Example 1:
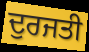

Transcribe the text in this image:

ਦੁਰਜਤੀ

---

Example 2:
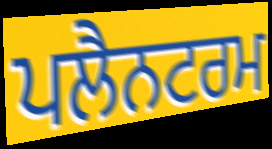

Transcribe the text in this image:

ਪਲੈਨਟਰਮ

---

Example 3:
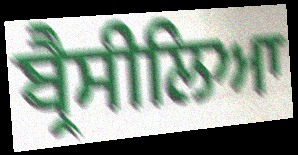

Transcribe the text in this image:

ਬ੍ਰੈਸੀਲਿਆ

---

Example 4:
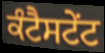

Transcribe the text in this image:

ਕੰਟੈਸਟੇਂਟ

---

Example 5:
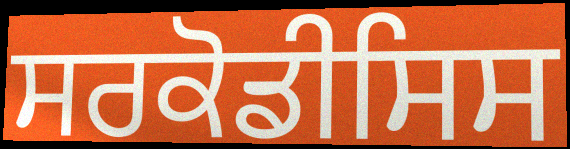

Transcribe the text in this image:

ਸਰਕੋਡੀਸਿਸ